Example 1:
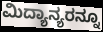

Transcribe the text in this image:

ಮಿದ್ಯಾನ್ಯರನ್ನೂ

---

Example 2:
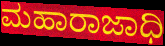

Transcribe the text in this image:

ಮಹಾರಾಜಾಧಿ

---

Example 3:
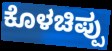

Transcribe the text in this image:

ಕೊಳಚಿಪ್ಪು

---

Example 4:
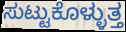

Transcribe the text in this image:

ಸುಟ್ಟುಕೊಳ್ಳುತ್ತ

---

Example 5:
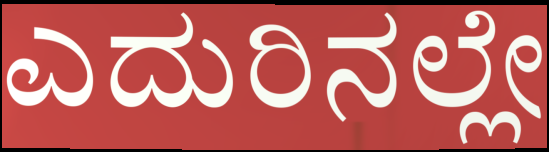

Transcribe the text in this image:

ಎದುರಿನಲ್ಲೇ